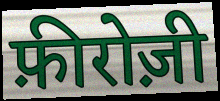
फ़ीरोज़ी